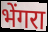
भेंगरा